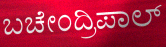
ಬಚೇಂದ್ರಿಪಾಲ್